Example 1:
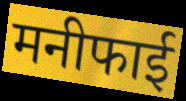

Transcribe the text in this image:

मनीफाई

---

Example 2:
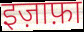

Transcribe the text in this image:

इज़ाफ़ा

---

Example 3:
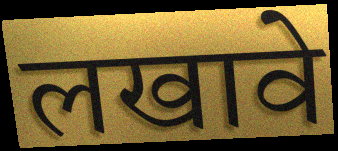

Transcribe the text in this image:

लखावे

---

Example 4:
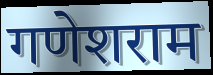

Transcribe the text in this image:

गणेशराम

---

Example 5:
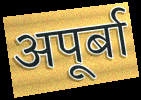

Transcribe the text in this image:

अपूर्बा